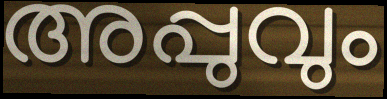
അപ്പുവും